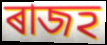
ৰাজহ